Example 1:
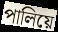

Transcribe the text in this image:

পালিয়ে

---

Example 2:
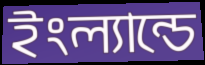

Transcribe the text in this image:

ইংল্যান্ডে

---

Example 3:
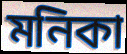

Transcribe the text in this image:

মনিকা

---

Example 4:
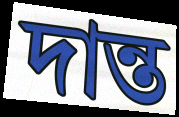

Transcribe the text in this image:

দান্ত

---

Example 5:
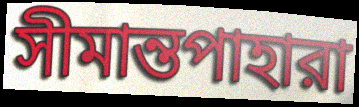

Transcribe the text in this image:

সীমান্তপাহারা